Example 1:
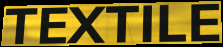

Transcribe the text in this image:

TEXTILE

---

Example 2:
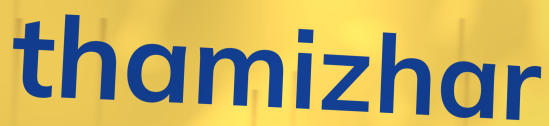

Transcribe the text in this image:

thamizhar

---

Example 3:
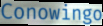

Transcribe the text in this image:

Conowingo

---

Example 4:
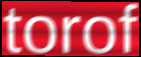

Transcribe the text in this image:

torof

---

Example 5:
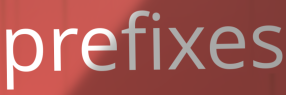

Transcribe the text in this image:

prefixes